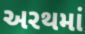
અરથમાં